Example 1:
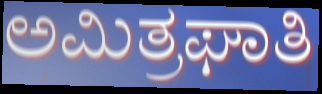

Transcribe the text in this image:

ಅಮಿತ್ರಘಾತಿ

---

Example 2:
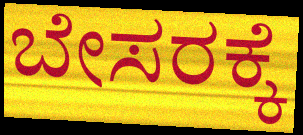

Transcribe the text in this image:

ಬೇಸರಕ್ಕೆ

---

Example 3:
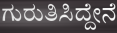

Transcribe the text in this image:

ಗುರುತಿಸಿದ್ದೇನೆ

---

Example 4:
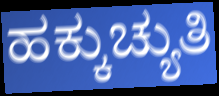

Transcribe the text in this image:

ಹಕ್ಕುಚ್ಯುತಿ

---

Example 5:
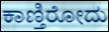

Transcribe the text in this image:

ಕಾಣ್ತಿರೋದು